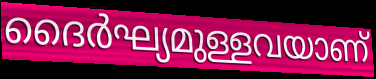
ദൈർഘ്യമുള്ളവയാണ്